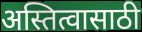
अस्तित्वासाठी